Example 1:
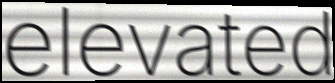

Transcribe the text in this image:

elevated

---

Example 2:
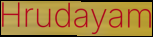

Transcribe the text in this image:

Hrudayam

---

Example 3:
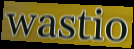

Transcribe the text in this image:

wastio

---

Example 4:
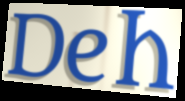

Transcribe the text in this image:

Deh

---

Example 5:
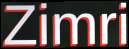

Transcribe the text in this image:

Zimri